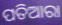
ପତିଆରା